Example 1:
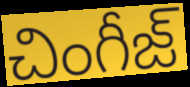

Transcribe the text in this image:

చింగీజ్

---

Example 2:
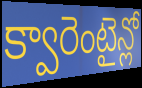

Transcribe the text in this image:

క్వారెంటైన్లో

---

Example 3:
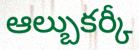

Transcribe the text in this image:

ఆల్బుకర్కీ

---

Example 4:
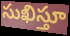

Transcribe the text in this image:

సుఖిస్తూ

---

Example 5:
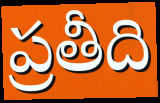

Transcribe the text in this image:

ప్రతీది